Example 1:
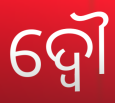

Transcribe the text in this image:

ଦ୍ଵୌ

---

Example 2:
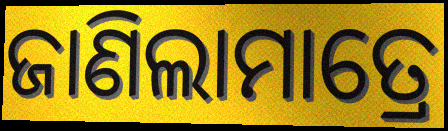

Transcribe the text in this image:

ଜାଣିଲାମାତ୍ରେ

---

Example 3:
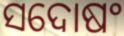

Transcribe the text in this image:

ସଦୋଷଂ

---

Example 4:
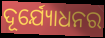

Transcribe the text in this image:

ଦୂର୍ଯ୍ୟୋଧନର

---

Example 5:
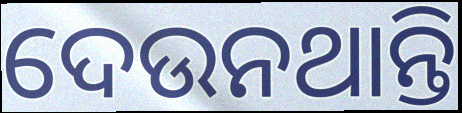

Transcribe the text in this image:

ଦେଉନଥାନ୍ତି